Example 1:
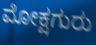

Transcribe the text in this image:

ಮೋಕ್ಷಗುರು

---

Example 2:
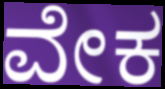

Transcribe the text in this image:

ವೇಕ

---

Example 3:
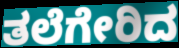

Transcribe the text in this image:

ತಲೆಗೇರಿದ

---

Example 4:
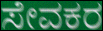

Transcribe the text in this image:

ಸೇವಕರ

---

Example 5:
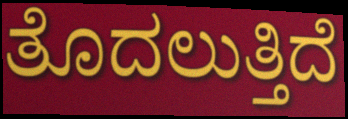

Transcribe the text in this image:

ತೊದಲುತ್ತಿದೆ